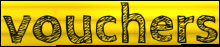
vouchers